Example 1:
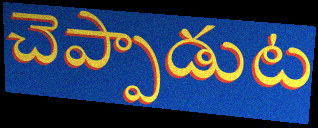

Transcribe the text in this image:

చెప్పాడుట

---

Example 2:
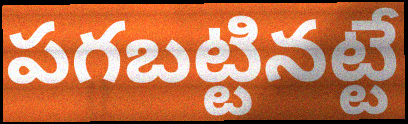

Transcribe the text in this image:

పగబట్టినట్టే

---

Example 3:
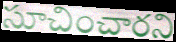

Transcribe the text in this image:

సూచించారని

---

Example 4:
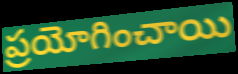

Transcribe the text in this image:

ప్రయోగించాయి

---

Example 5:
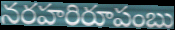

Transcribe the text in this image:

నరహరిరూపంబు